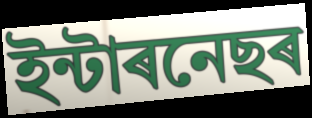
ইন্টাৰনেছৰ